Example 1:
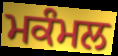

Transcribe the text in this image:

ਮਕੰਮਲ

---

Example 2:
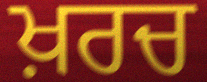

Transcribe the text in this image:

ਖ਼ਰਚ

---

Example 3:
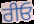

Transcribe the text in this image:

ਰੀਓ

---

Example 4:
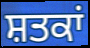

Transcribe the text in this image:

ਸ਼ਤਕਾਂ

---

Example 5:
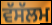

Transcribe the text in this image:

ਵੱਸੱਲਮ